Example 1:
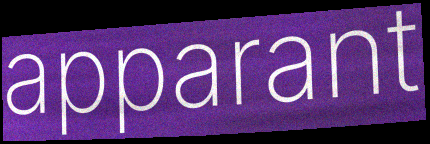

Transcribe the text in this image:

apparant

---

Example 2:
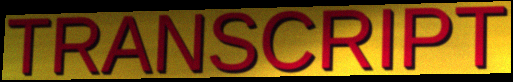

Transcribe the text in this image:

TRANSCRIPT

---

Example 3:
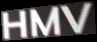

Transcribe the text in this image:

HMV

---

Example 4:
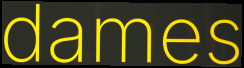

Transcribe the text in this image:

dames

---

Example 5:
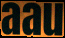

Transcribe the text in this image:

aau